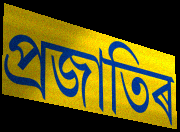
প্ৰজাতিৰ